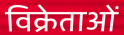
विक्रेताओं